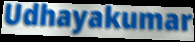
Udhayakumar